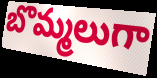
బొమ్మలుగా